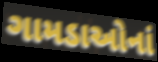
ગામડાઓનાં